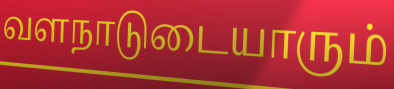
வளநாடுடையாரும்